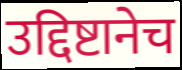
उद्दिष्टानेच